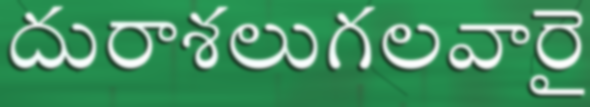
దురాశలుగలవారై